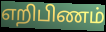
எறிபிணம்